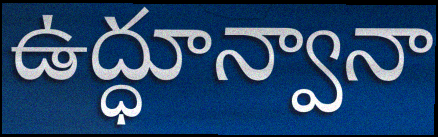
ఉద్ధూన్వానా